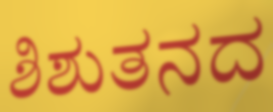
ಶಿಶುತನದ